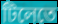
টিলেতে